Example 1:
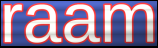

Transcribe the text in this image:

raam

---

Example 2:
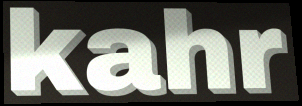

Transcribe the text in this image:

kahr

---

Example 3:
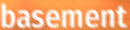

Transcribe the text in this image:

basement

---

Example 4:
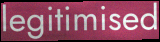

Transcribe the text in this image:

legitimised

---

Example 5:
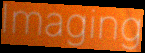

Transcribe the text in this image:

Imaging